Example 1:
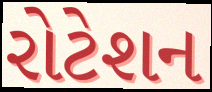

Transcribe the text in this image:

રોટેશન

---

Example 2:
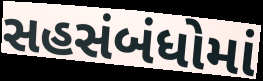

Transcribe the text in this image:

સહસંબંધોમાં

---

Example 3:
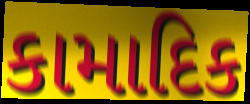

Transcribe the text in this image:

કામાદિક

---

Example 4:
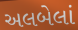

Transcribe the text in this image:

અલબેલાં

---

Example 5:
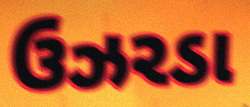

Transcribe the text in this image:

ઉઝરડા